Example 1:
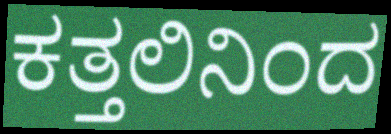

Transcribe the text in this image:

ಕತ್ತಲಿನಿಂದ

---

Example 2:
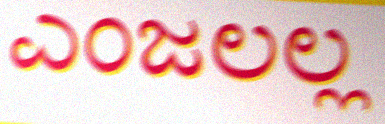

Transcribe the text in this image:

ಎಂಜಲಲ್ಲ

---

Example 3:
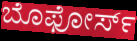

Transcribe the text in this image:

ಬೊಫೋರ್ಸ್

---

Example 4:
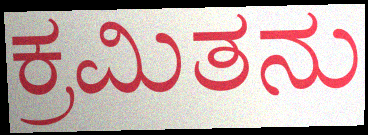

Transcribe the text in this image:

ಕ್ರಮಿತನು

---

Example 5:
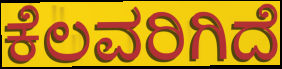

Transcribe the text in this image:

ಕೆಲವರಿಗಿದೆ